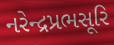
નરેન્દ્રપ્રભસૂરિ